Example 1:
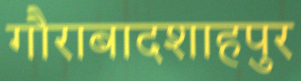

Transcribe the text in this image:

गौराबादशाहपुर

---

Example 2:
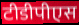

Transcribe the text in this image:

टीडीपीएस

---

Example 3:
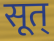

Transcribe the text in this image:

सूत्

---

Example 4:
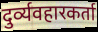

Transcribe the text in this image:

दुर्व्यवहारकर्ता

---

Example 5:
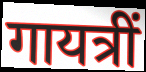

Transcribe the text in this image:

गायत्रीं